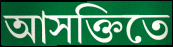
আসক্তিতে